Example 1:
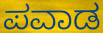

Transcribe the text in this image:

ಪವಾಡ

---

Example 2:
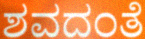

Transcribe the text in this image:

ಶವದಂತೆ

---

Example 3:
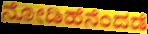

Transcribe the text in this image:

ನೋಡಿಹೆನೆಂದಡೆ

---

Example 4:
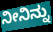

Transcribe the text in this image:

ನೀನಿನ್ನು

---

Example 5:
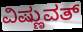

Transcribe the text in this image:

ವಿಷ್ಣುವತ್